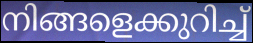
നിങ്ങളെക്കുറിച്ച്